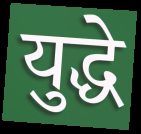
युद्धे